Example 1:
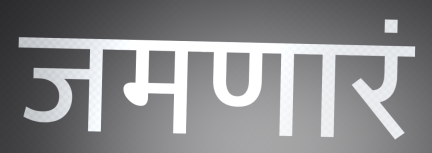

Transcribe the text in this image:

जमणारं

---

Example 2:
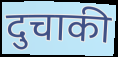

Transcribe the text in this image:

दुचाकी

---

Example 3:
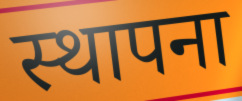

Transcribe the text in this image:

स्थापना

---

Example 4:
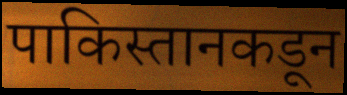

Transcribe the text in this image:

पाकिस्तानकडून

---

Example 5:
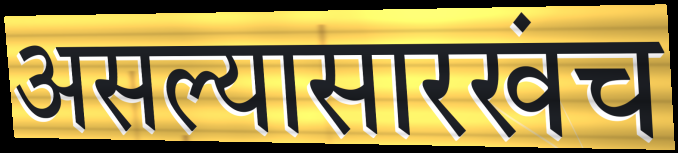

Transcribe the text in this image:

असल्यासारखंच